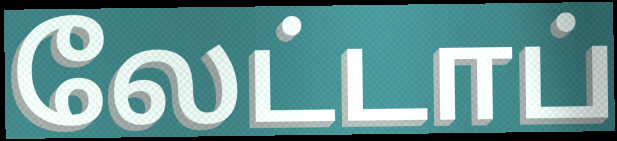
லேட்டாப்